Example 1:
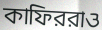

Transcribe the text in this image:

কাফিররাও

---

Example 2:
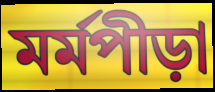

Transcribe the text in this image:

মর্মপীড়া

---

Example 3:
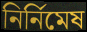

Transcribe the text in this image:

নির্নিমেষ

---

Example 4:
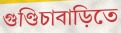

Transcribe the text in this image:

গুণ্ডিচাবাড়িতে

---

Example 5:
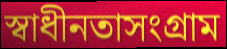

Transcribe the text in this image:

স্বাধীনতাসংগ্রাম